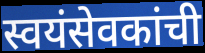
स्वयंसेवकांची